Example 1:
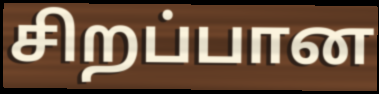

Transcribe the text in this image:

சிறப்பான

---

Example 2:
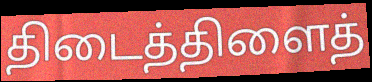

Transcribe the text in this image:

திடைத்திளைத்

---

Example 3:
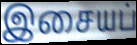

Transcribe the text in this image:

இசையப்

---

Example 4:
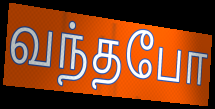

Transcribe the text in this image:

வந்தபோ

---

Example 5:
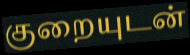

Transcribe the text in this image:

குறையுடன்